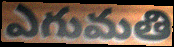
ఎగుమతి